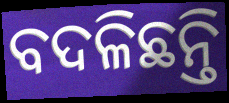
ବଦଳିଛନ୍ତି